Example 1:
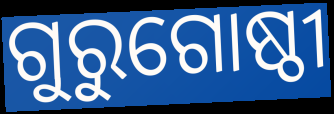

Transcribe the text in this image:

ଗୁରୁଗୋଷ୍ଠୀ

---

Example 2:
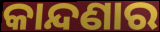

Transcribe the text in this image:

କାନ୍ଦଣାର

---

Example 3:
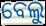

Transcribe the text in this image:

ବେଲୁ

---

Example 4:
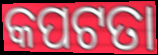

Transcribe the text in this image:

କପଟତା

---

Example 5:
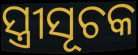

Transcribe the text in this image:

ସ୍ତ୍ରୀସୂଚକ